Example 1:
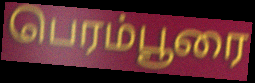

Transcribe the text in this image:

பெரம்பூரை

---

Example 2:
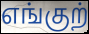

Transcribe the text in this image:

எங்குற்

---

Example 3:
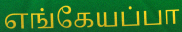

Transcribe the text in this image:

எங்கேயப்பா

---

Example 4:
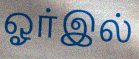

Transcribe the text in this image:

ஓர்இல்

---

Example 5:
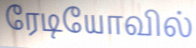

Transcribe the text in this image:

ரேடியோவில்